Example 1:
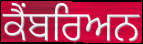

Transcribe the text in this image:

ਕੈਂਬਰਿਅਨ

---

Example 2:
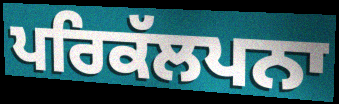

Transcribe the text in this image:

ਪਰਿਕੱਲਪਨਾ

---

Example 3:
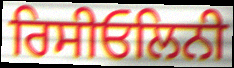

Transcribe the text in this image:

ਰਿਸੀਓਲਿਨੀ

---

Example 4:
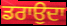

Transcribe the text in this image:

ਡਰਾਉਦਾ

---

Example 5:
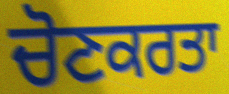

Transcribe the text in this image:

ਚੋਣਕਰਤਾ